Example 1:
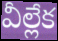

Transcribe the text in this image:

వీల్లేక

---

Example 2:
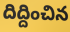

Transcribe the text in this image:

దిద్దించిన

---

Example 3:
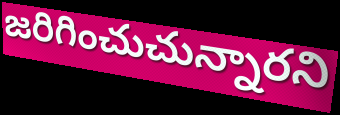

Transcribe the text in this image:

జరిగించుచున్నారని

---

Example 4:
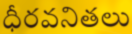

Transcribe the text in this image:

ధీరవనితలు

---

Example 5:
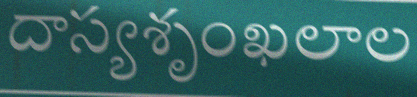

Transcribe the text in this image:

దాస్యశృంఖలాల